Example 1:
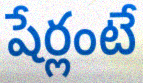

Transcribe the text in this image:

షేర్లంటే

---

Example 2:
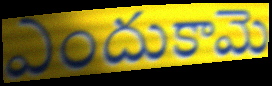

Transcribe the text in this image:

ఎందుకామె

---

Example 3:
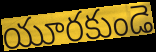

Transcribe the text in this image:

యూరకుండె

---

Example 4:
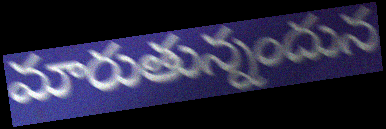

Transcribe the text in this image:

మారుతున్నందున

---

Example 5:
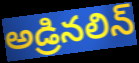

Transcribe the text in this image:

అడ్రినలిన్